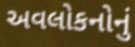
અવલોકનોનું